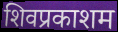
शिवप्रकाशम